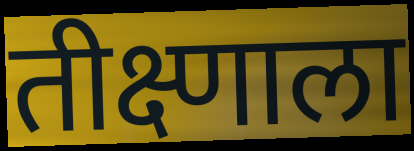
तीक्ष्णाला